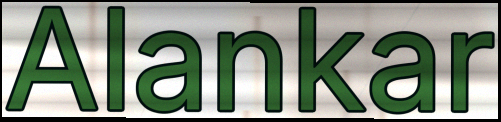
Alankar